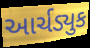
આર્ચડ્યુક